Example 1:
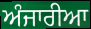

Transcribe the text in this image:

ਅੰਜਾਰੀਆ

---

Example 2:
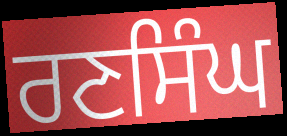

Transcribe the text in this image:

ਰਣਸਿੰਘ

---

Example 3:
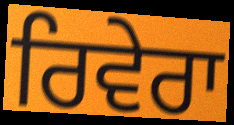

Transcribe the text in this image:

ਰਿਵੇਰਾ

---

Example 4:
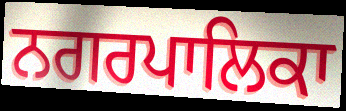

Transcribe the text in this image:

ਨਗਰਪਾਲਿਕਾ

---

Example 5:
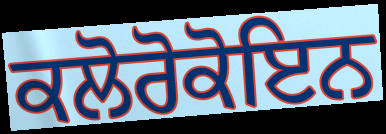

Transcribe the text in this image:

ਕਲੋਰੋਕੋਇਨ